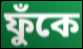
ফুঁকে